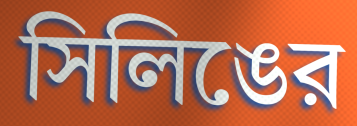
সিলিঙের